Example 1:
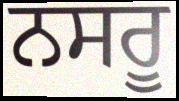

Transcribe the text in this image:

ਨਸਰੂ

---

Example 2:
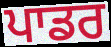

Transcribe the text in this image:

ਪਾਡਰ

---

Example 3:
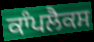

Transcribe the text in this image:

ਕਾੰਪਲੈਕਸ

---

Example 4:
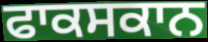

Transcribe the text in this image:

ਫਾਕਸਕਾਨ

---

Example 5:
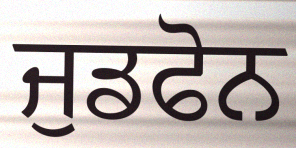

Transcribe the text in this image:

ਜੁਡਫੋਨ